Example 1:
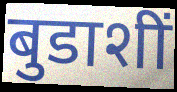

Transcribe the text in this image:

बुडाशीं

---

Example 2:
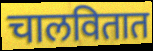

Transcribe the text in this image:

चालवितात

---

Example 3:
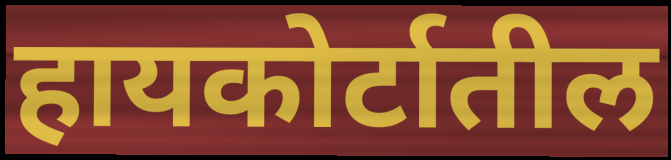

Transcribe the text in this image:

हायकोर्टातील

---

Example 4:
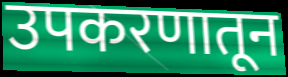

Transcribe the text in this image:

उपकरणातून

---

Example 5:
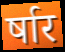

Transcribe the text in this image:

र्षार